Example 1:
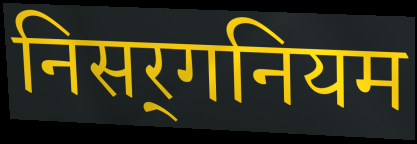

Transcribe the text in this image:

निसर्गनियम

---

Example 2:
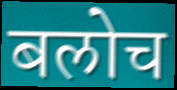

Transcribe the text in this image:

बलोच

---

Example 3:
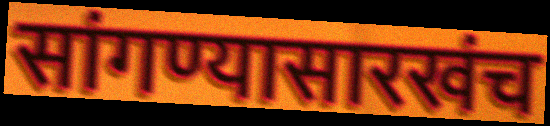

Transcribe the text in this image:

सांगण्यासारखंच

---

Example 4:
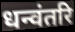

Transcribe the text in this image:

धन्वंतरि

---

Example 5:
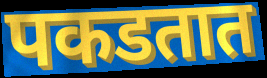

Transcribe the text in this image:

पकडतात